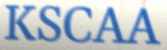
KSCAA